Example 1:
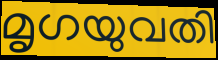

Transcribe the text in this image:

മൃഗയുവതി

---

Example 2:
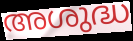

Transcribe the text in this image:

അശുദ്ധ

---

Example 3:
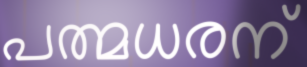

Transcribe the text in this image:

പത്മധരന്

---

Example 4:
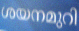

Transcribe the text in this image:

ശയനമുറി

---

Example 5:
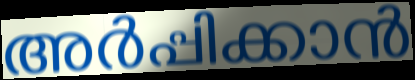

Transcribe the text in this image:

അർപ്പിക്കാൻ